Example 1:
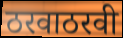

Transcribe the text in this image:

ठरवाठरवी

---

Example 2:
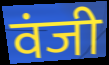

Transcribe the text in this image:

वंजी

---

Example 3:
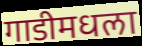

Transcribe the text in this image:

गाडीमधला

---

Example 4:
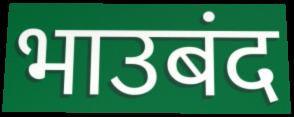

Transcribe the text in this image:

भाउबंद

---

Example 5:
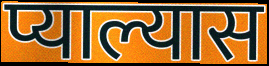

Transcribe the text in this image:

प्याल्यास